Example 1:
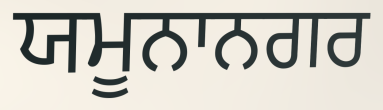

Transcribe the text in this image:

ਯਮੂਨਾਨਗਰ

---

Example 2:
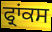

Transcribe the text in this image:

ਫ੍ਰਾਂਕਸ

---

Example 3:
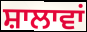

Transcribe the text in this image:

ਸ਼ਾਲਾਵਾਂ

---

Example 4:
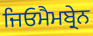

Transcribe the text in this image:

ਜਿਓਮੈਮਬ੍ਰੇਨ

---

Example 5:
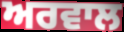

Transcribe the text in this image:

ਅਰਵਾਲ